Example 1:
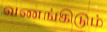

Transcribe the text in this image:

வணங்கிடும்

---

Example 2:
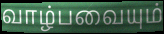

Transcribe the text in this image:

வாழ்பவையும்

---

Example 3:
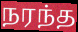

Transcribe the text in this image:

நரந்த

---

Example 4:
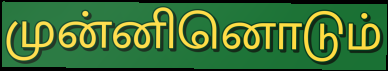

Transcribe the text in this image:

முன்னினொடும்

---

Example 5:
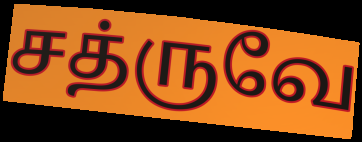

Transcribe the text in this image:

சத்ருவே